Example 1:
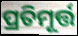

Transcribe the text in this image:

ପ୍ରତିମୂର୍ତ୍ତ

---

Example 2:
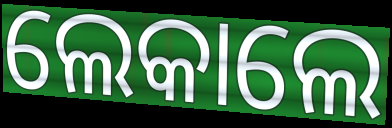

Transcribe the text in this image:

ଲେକାଲେ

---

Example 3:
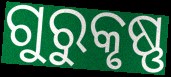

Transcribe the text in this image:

ଗୁରୁକୃଷ୍ଣ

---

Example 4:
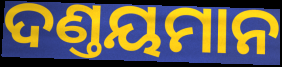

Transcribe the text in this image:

ଦଣ୍ତୟମାନ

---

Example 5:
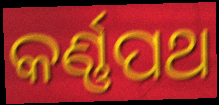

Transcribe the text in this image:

କର୍ଣ୍ଣପଥ